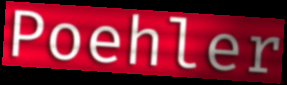
Poehler